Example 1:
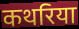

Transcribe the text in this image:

कथरिया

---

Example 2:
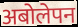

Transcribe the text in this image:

अबोलेपन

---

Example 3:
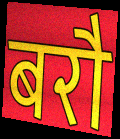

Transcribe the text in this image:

बरौ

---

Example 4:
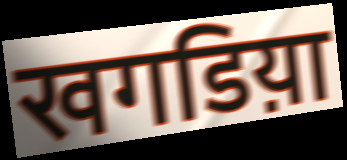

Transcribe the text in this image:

खगडिय़ा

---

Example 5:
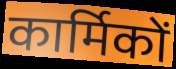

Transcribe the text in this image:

कार्मिकों